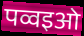
पव्वइओ